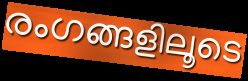
രംഗങ്ങളിലൂടെ